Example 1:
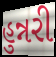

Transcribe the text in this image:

હુન્નરી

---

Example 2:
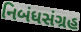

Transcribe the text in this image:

નિબંધસંગ્રહ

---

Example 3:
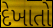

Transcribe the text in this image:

દેખાતો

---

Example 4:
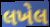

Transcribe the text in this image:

લખેલ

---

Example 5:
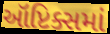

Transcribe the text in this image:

ઑપ્ટિક્સમાં